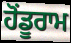
ਹੋਂਡੂਰਾਮ